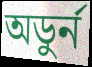
অডুর্ন